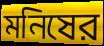
মনিষের